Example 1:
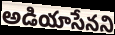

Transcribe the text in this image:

అడియాసేనని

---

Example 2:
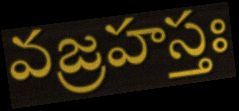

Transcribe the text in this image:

వజ్రహస్తః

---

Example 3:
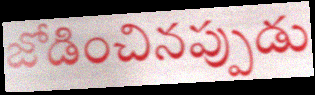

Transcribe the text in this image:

జోడించినప్పుడు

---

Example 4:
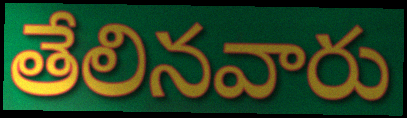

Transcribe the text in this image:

తేలినవారు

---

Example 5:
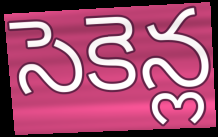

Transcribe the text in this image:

సెకెన్ల